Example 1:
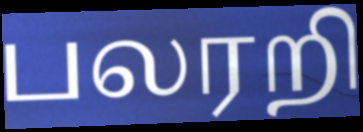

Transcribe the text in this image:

பலரறி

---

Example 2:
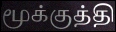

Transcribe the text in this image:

மூக்குத்தி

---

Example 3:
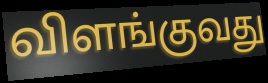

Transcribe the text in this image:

விளங்குவது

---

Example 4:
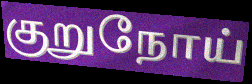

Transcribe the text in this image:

குறுநோய்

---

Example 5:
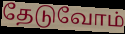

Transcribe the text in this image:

தேடுவோம்